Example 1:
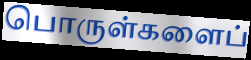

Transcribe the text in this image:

பொருள்களைப்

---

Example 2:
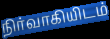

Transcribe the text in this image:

நிர்வாகியிடம்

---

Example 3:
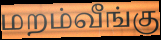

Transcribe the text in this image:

மறம்வீங்கு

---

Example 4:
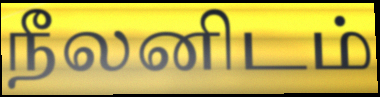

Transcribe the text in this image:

நீலனிடம்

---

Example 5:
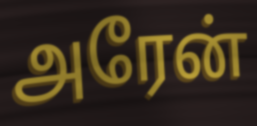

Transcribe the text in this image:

அரேன்